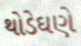
થોડેઘણે